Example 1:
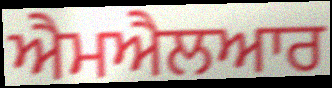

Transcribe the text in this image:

ਐਮਐਲਆਰ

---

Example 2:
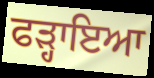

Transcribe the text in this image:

ਫੜ੍ਹਾਇਆ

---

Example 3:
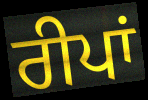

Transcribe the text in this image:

ਰੀਪਾਂ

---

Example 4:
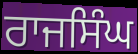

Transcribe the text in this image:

ਰਾਜਸਿੰਘ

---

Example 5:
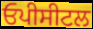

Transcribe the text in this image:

ਓਪੀਸੀਟਲ